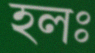
হলঃ